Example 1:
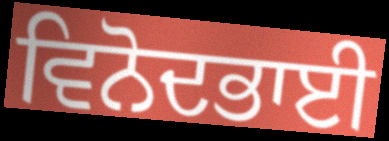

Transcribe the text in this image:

ਵਿਨੋਦਭਾਈ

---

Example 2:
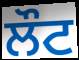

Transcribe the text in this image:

ਲੌਟ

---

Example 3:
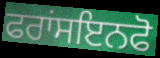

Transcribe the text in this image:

ਫਰਾਂਸਇਨਫੋ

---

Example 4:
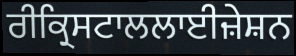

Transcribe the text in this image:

ਰੀਕ੍ਰਿਸਟਾਲਲਾਈਜ਼ੇਸ਼ਨ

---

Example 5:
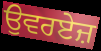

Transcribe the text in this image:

ਉਵਰਏਜ਼